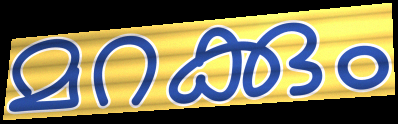
മറക്കും